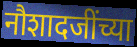
नौशादजींच्या